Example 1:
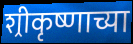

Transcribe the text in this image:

श्रीकृष्णाच्या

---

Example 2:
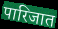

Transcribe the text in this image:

पारिजात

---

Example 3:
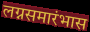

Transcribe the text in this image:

लग्नसमारंभास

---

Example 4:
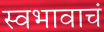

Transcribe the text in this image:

स्वभावाचं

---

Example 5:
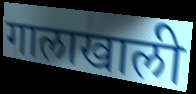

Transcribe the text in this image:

गालाखाली